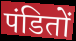
पंडितों